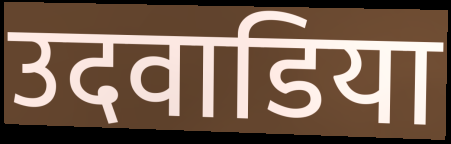
उदवाडिया